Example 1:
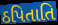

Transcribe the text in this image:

ઠપિતાતિ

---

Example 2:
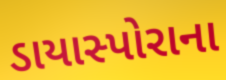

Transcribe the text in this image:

ડાયાસ્પોરાના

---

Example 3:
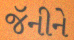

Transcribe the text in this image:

જૅનીને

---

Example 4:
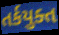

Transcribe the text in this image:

તર્કયુક્ત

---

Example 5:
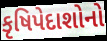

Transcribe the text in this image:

કૃષિપેદાશોનો